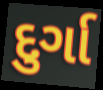
દુર્ગા